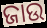
ଜାଉ